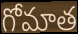
గోమాత